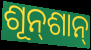
ଶୂନ୍‌ଶାନ୍